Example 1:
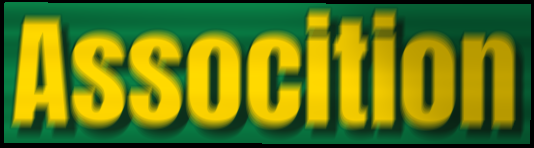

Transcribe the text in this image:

Assocition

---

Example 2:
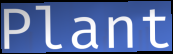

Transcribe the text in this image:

Plant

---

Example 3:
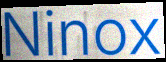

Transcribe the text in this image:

Ninox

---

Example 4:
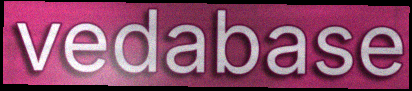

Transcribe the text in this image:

vedabase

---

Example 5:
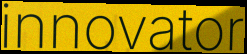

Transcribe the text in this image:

innovator